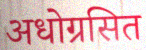
अधोग्रसित